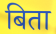
बिता